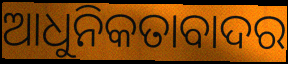
ଆଧୁନିକତାବାଦର